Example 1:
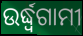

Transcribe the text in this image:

ଉର୍ଦ୍ଧ୍ୱଗାମୀ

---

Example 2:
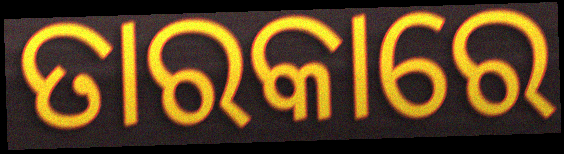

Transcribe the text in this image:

ତାରକାରେ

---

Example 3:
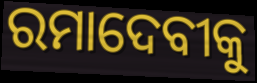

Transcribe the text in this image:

ରମାଦେବୀକୁ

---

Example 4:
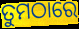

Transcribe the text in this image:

ତୁମଠାରେ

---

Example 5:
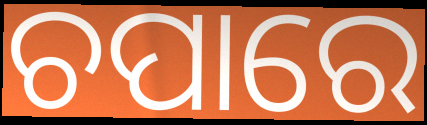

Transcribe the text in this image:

ଚପାରେ